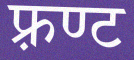
फ़्रण्ट